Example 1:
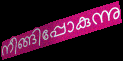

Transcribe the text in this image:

നീങ്ങിപ്പോകുന്നു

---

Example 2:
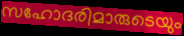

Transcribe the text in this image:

സഹോദരിമാരുടെയും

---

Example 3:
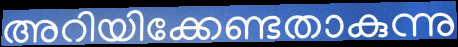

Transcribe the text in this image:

അറിയിക്കേണ്ടതാകുന്നു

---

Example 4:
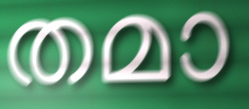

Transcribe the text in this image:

തമാ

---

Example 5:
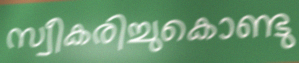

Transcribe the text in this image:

സ്വീകരിച്ചുകൊണ്ടു